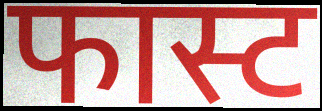
फास्ट